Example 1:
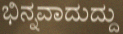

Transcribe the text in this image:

ಭಿನ್ನವಾದುದ್ದು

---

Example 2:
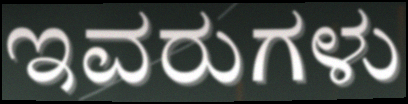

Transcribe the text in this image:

ಇವರುಗಳು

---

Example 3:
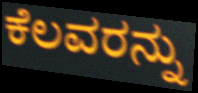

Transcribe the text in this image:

ಕೆಲವರನ್ನು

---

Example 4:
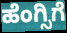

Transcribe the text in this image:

ಹೆಂಗ್ಸಿಗೆ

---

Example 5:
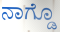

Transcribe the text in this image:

ನಾಗ್ಡೊ